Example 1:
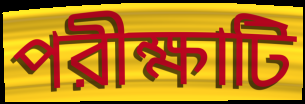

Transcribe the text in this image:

পরীক্ষাটি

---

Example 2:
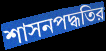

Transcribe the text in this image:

শাসনপদ্ধতির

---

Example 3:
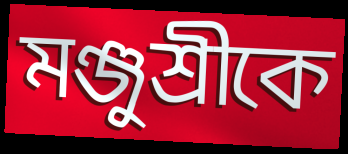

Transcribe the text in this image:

মঞ্জুশ্রীকে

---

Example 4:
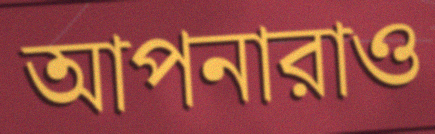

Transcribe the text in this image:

আপনারাও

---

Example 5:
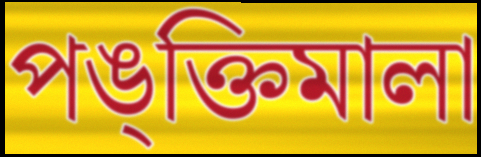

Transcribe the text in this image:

পঙ্‌ক্তিমালা